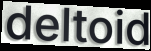
deltoid